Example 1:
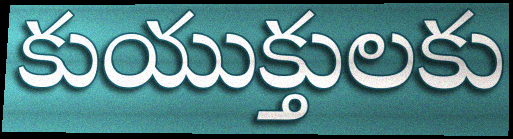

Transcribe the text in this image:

కుయుక్తులకు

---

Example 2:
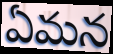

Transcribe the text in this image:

ఏమన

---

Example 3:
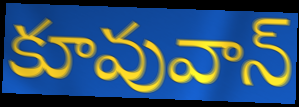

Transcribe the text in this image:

కూవువాన్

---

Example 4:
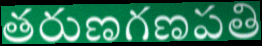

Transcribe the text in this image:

తరుణగణపతి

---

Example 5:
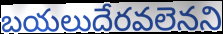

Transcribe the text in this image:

బయలుదేరవలెనని